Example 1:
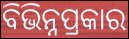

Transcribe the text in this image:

ବିଭିନ୍ନପ୍ରକାର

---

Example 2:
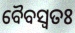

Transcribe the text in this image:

ବୈବସ୍ଵତଃ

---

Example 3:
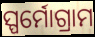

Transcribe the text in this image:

ସ୍ପର୍ମୋଗ୍ରାମ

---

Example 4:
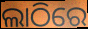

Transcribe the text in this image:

ଲାଠିରେ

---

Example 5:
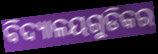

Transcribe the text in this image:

ବିଦ୍ୟାଳୟଗୁଡିକର